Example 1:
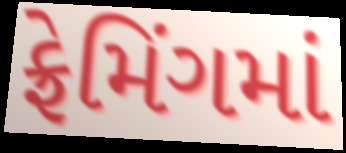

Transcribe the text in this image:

ફ્રેમિંગમાં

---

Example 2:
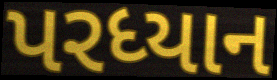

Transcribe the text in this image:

પરધ્યાન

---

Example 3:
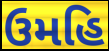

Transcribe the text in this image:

ઉમહિ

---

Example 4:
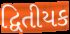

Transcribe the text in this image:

દ્વિતીયક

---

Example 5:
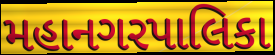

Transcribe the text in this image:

મહાનગરપાલિકા